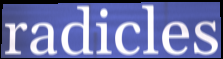
radicles